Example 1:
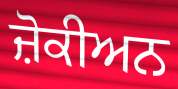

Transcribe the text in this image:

ਜ਼ੋਕੀਅਨ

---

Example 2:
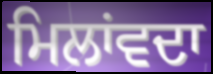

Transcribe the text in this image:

ਮਿਲਾਂਵਦਾ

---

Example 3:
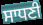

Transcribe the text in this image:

ਸਾਧਣੀ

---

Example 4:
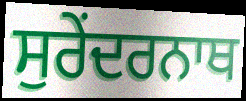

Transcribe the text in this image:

ਸੁਰੇਂਦਰਨਾਥ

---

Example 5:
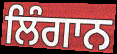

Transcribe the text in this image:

ਲਿੰਗਾਨ